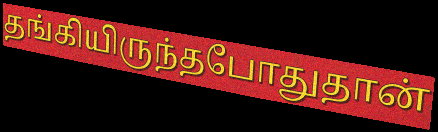
தங்கியிருந்தபோதுதான்